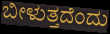
ಬೀಳುತ್ತದೆಂದು